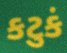
કટુકં